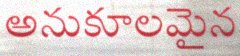
అనుకూలమైన